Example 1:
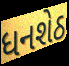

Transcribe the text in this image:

ધનશેઠ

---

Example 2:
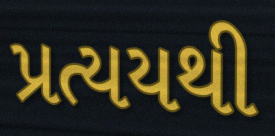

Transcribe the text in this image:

પ્રત્યયથી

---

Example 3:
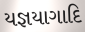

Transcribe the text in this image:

યજ્ઞયાગાદિ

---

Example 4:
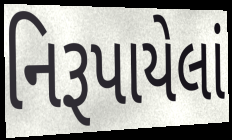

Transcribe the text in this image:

નિરૂપાયેલાં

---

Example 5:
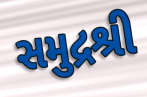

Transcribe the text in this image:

સમુદ્રશ્રી